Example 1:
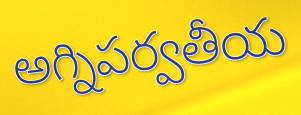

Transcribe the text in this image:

అగ్నిపర్వతీయ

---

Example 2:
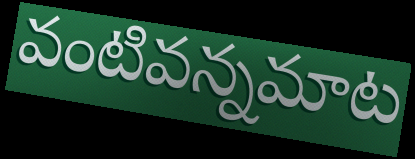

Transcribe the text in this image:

వంటివన్నమాట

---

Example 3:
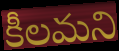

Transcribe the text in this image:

కీలమని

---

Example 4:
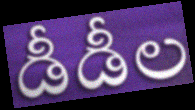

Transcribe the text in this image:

డీడీల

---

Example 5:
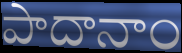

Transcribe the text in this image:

పాదానాం